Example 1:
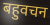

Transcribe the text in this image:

बहुवचन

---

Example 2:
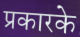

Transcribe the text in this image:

प्रकारके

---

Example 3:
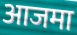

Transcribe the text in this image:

आजमा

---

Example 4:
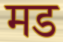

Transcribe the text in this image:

मड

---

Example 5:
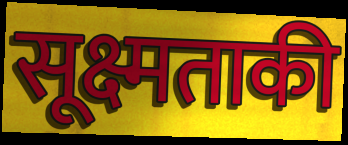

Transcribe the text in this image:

सूक्ष्मताकी